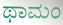
ಥಾಮಂ